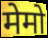
मेमो